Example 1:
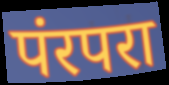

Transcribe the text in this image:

पंरपरा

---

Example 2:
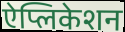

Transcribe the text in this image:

ऐप्लिकेशन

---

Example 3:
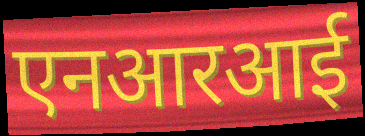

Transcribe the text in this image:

एनआरआई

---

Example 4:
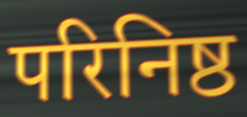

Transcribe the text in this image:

परिनिष्ठ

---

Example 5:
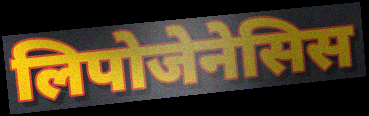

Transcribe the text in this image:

लिपोजेनेसिस